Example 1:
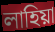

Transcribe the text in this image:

লাহিয়া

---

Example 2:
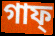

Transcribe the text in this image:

গাফ্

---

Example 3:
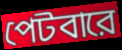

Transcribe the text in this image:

পেটবারে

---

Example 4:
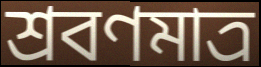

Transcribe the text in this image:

শ্রবণমাত্র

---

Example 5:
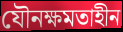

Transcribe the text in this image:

যৌনক্ষমতাহীন